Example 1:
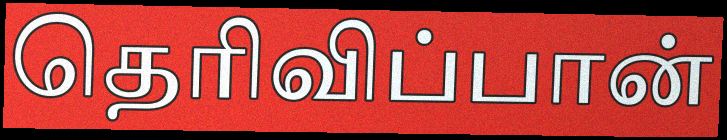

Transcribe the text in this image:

தெரிவிப்பான்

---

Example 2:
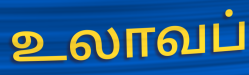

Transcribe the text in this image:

உலாவப்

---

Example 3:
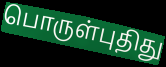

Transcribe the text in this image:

பொருள்புதிது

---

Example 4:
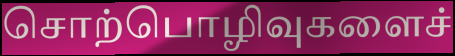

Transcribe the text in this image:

சொற்பொழிவுகளைச்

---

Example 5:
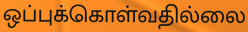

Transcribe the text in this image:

ஒப்புக்கொள்வதில்லை